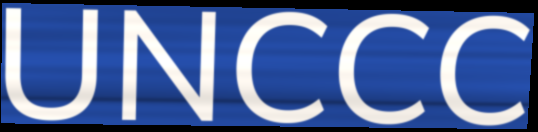
UNCCC